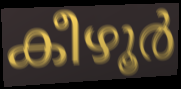
കീഴൂർ